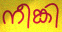
നീങ്കി